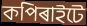
কপিৰাইটে